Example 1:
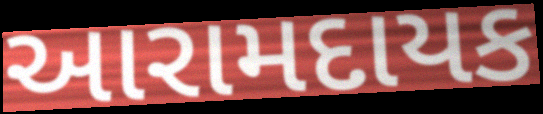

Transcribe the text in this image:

આરામદાયક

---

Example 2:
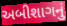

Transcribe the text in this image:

અબીશાગનું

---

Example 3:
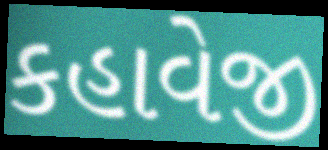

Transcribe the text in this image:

કહાવેજી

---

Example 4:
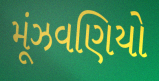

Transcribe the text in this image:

મૂંઝવણિયો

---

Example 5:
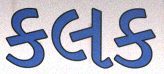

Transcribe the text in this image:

કલક